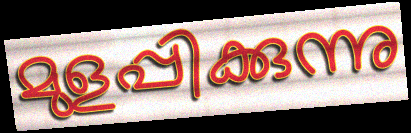
മുളപ്പിക്കുന്നു